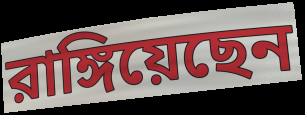
রাঙ্গিয়েছেন